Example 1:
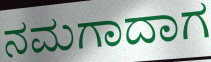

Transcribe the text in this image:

ನಮಗಾದಾಗ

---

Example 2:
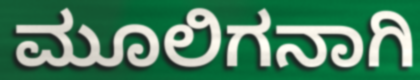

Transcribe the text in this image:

ಮೂಲಿಗನಾಗಿ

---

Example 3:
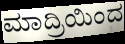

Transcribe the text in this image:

ಮಾದ್ರಿಯಿಂದ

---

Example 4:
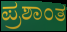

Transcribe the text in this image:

ಪ್ರಶಾಂತ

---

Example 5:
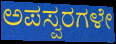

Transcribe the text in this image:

ಅಪಸ್ವರಗಳೇ